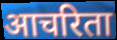
आचरिता